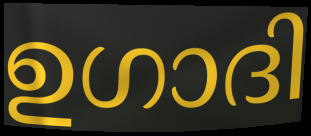
ഉഗാദി